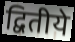
द्वितीये